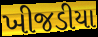
ખીજડીયા